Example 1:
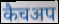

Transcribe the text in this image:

कैचअप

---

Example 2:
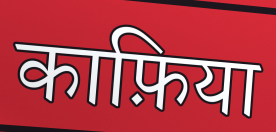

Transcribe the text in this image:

काफ़िया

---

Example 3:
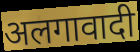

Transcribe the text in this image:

अलगावादी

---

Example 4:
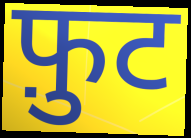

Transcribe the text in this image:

फ़ुट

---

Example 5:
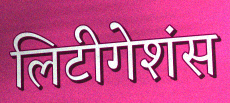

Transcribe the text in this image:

लिटीगेशंस